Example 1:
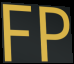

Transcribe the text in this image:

FP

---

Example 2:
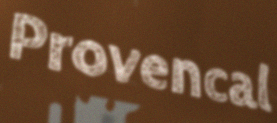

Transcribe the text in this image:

Provencal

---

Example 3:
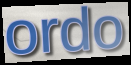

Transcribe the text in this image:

ordo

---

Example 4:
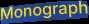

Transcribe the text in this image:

Monograph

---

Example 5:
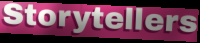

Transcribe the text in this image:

Storytellers